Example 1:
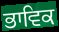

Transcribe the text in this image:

ਭਾਵਿਕ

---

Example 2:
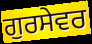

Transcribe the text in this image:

ਗੁਰਸੇਵਰ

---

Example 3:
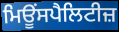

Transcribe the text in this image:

ਮਿਊਂਸਪੈਲਿਟੀਜ਼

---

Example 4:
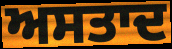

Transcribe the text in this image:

ਅਸਤਾਦ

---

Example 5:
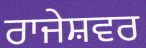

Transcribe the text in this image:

ਰਾਜੇਸ਼ਵਰ